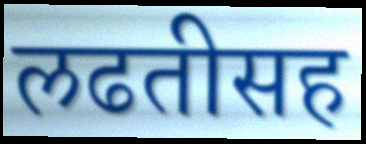
लढतीसह